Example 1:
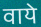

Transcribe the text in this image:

वाये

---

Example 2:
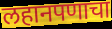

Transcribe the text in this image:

लहानपणाचा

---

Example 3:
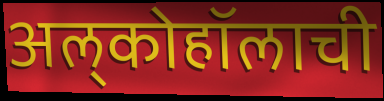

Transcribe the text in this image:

अल्कोहॉलाची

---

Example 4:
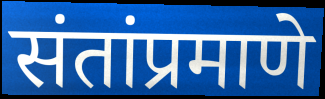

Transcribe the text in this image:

संतांप्रमाणे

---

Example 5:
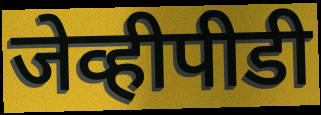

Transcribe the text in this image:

जेव्हीपीडी